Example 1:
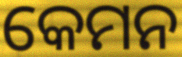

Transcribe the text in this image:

କେମନ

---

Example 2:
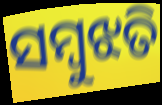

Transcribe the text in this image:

ସମ୍ବୁଝତି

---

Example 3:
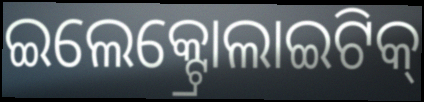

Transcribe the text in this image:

ଇଲେକ୍ଟ୍ରୋଲାଇଟିକ୍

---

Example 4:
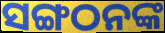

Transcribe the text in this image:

ସଙ୍ଗଠନଙ୍କ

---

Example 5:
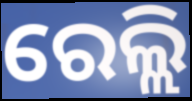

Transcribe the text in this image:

ରେଲ୍ଲି